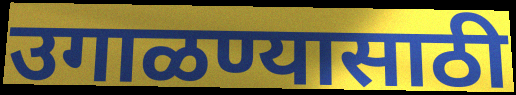
उगाळण्यासाठी